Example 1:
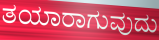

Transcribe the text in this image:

ತಯಾರಾಗುವುದು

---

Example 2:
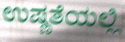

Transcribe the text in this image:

ಉಷ್ಣತೆಯಲ್ಲಿ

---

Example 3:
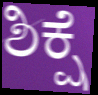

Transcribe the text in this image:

ಶಿಕ್ಷೆ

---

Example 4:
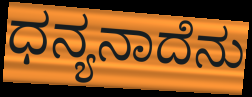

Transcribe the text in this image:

ಧನ್ಯನಾದೆನು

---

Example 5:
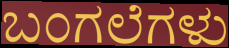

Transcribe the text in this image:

ಬಂಗಲೆಗಳು